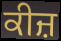
ਕੀਜ਼